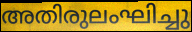
അതിരുലംഘിച്ചു